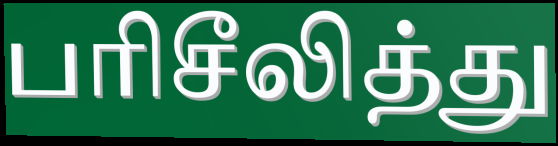
பரிசீலித்து